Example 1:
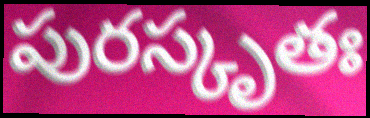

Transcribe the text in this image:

పురస్కృతః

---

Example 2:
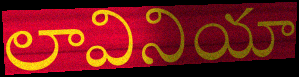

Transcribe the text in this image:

లావినియా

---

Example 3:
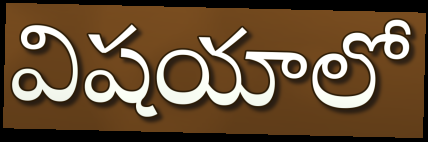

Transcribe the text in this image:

విషయాలో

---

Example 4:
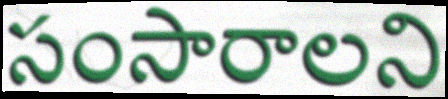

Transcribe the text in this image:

సంసారాలని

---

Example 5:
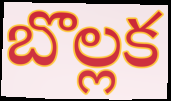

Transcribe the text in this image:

బొల్లక